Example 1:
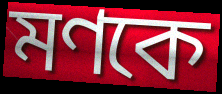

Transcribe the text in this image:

মণকে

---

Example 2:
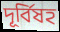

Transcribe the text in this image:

দূর্বিষহ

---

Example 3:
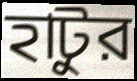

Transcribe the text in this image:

হাটুর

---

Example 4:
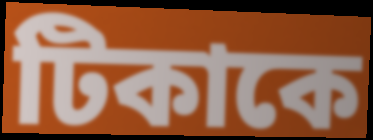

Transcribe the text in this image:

টিকাকে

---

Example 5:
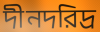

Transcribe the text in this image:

দীনদরিদ্র